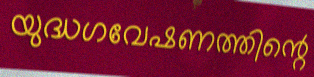
യുദ്ധഗവേഷണത്തിന്റെ